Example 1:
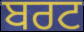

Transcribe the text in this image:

ਬਰਟ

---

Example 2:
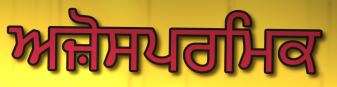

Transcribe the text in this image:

ਅਜ਼ੋਸਪਰਮਿਕ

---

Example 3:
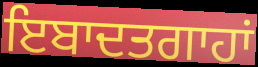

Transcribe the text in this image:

ਇਬਾਦਤਗਾਹਾਂ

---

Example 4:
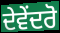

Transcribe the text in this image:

ਦੇਵੇਂਦਰੋ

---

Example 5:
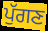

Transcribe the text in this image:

ਪੁੱਗਣ